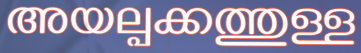
അയല്പക്കത്തുള്ള